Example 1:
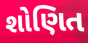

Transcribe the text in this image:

શોણિત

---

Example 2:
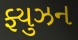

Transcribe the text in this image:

ફ્યુઝન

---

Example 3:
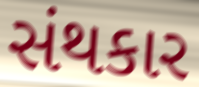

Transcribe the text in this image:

સંથકાર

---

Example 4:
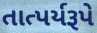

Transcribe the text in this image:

તાત્પર્યરૂપે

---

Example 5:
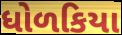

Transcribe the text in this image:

ધોળકિયા